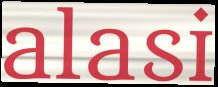
alasi